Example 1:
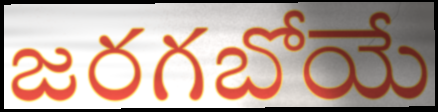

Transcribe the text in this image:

జరగబోయే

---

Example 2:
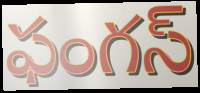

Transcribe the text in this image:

ఫంగస్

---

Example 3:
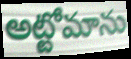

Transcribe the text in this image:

అట్టోమాను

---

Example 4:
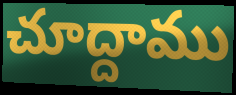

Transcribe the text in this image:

చూద్దాము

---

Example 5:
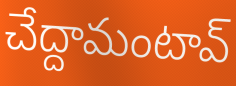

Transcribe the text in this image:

చేద్దామంటావ్